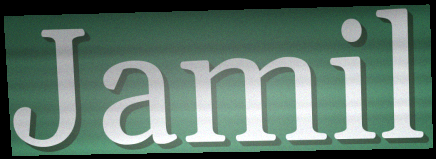
Jamil